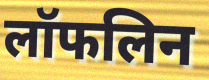
लॉफलिन